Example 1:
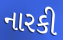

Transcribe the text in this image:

નારકી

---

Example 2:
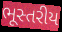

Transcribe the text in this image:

ભૂસ્તરીય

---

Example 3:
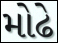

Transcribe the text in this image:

મોઢે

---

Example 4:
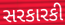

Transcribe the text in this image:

સરકારકી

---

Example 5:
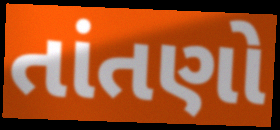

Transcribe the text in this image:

તાંતણો